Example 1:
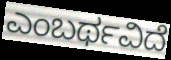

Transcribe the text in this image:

ಎಂಬರ್ಥವಿದೆ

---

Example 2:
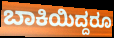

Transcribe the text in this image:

ಬಾಕಿಯಿದ್ದರೂ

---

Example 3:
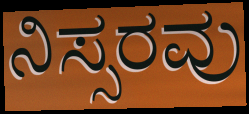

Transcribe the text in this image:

ನಿಸ್ಸರವು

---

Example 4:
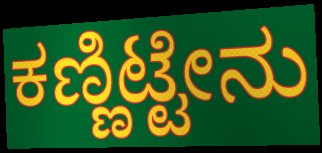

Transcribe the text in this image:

ಕಣ್ಣಿಟ್ಟೇನು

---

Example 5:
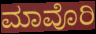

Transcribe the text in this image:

ಮಾವೊರಿ